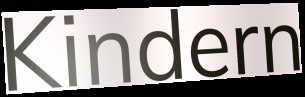
Kindern